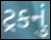
ટ્રકનું